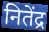
नितेंद्र